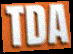
TDA